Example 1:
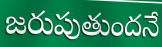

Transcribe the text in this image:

జరుపుతుందనే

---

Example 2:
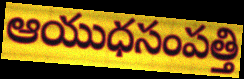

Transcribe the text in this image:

ఆయుధసంపత్తి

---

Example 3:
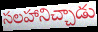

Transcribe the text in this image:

సలహానిచ్చాడు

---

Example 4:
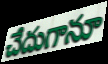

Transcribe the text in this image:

చేదుగానూ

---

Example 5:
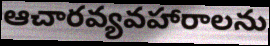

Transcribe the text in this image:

ఆచారవ్యవహారాలను